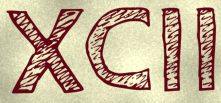
XCII